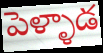
పెళ్ళాడ